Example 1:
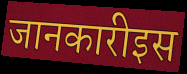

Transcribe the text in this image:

जानकारीइस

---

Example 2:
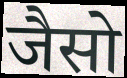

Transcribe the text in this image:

जैसो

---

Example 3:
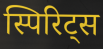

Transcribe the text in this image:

स्पिरिट्स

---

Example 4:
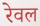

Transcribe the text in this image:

रेवल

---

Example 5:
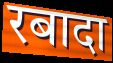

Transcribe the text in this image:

रबादा